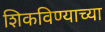
शिकविण्याच्या